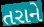
તરાને